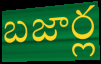
బజార్ల